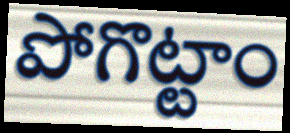
పోగొట్టాం